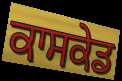
ਕਾਸਕੇਡ